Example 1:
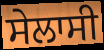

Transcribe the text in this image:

ਸੇਲਾਸੀ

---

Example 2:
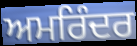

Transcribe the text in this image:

ਅਮਰਿੰਦਰ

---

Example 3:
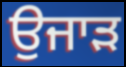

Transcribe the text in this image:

ਉਜਾੜ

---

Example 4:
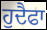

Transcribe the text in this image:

ਹੁਦੈਫਾ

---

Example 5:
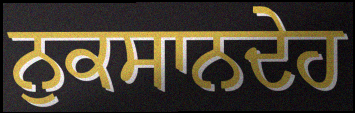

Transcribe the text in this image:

ਨੁਕਸਾਨਦੇਹ